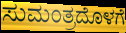
ಸುಮಂತ್ರದೊಳಗೆ